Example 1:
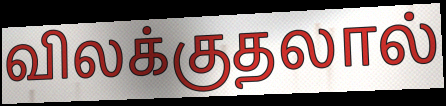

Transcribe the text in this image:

விலக்குதலால்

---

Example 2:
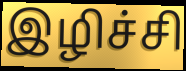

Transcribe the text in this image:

இழிச்சி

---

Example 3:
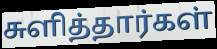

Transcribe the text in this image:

சுளித்தார்கள்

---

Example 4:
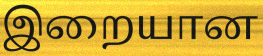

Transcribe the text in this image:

இறையான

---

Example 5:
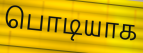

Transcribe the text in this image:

பொடியாக